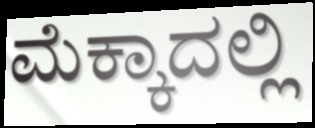
ಮೆಕ್ಕಾದಲ್ಲಿ